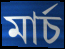
মার্চ